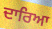
ਦਾਰਿਆ